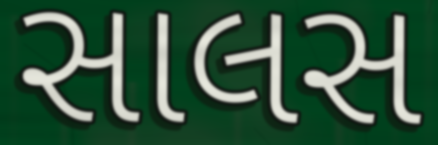
સાલસ